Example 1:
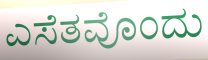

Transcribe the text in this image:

ಎಸೆತವೊಂದು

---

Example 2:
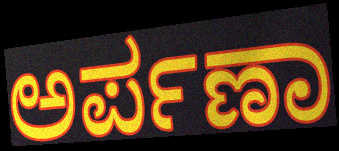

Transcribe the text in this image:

ಅರ್ಪಣಾ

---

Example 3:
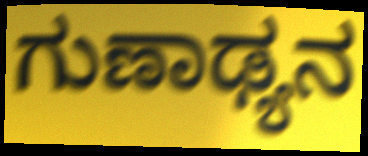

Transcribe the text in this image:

ಗುಣಾಢ್ಯನ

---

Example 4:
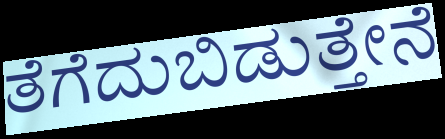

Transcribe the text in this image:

ತೆಗೆದುಬಿಡುತ್ತೇನೆ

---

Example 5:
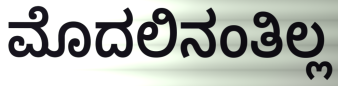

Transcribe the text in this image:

ಮೊದಲಿನಂತಿಲ್ಲ